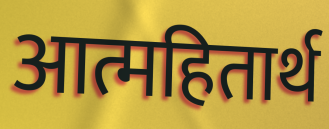
आत्महितार्थ